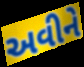
અવીને